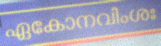
ഏകോനവിംശഃ